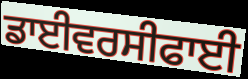
ਡਾਈਵਰਸੀਫਾਈ